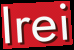
Irei